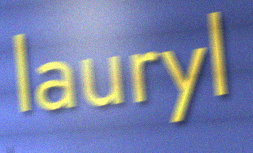
lauryl